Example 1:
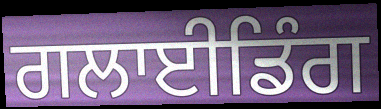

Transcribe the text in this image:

ਗਲਾਈਡਿੰਗ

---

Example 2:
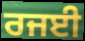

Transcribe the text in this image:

ਰਜਈ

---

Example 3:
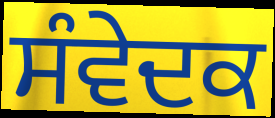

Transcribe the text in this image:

ਸੰਵੇਦਕ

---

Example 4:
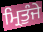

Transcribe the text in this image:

ਮ੍ਰਿਤੁੰਜੇ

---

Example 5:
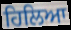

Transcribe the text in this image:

ਹਿਲਿਆ